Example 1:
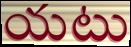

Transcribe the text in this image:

యటు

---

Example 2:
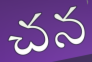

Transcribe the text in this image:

చన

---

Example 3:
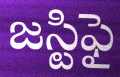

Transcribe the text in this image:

జస్టిఫై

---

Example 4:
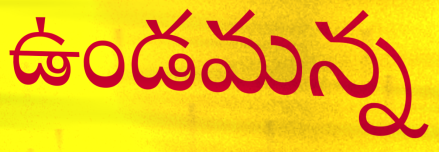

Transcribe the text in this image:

ఉండమన్న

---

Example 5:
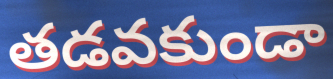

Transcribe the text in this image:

తడవకుండా